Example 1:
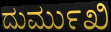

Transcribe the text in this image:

ದುರ್ಮುಖಿ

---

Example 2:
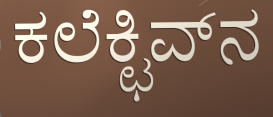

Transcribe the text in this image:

ಕಲೆಕ್ಟಿವ್‌ನ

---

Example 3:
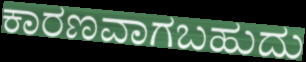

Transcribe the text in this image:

ಕಾರಣವಾಗಬಹುದು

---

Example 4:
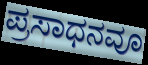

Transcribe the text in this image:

ಪ್ರಸಾಧನವೂ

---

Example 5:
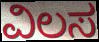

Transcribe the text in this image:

ವಿಲಸ